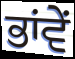
ਭਾਂਵੇਂ